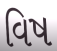
વિષ